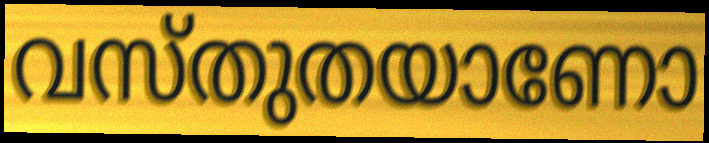
വസ്തുതയാണോ